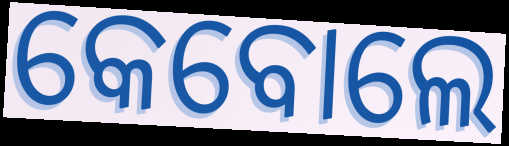
କେବୋଲେ